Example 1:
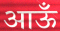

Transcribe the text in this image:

आऊँ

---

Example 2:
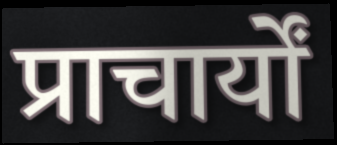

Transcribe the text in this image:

प्राचार्यों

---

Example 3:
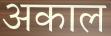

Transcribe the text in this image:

अकाल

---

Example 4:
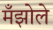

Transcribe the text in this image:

मँझोले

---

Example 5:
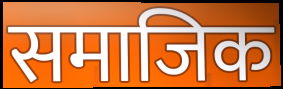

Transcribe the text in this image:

समाजिक